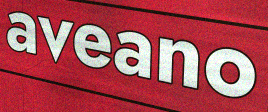
aveano